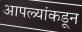
आपल्यांकडून